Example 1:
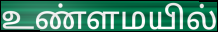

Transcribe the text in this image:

உண்ளமயில்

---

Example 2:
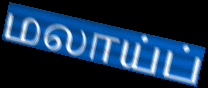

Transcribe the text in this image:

மலாய்ப்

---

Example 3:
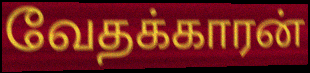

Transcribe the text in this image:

வேதக்காரன்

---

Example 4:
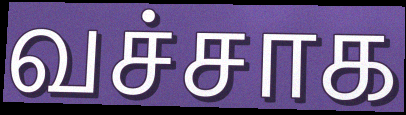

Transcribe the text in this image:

வச்சாக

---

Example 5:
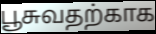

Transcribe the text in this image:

பூசுவதற்காக